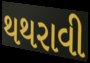
થથરાવી